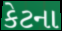
કેટના